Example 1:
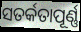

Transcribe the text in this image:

ସତର୍କତାପୂର୍ଣ୍ଣ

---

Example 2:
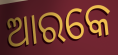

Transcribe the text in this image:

ଆରକେ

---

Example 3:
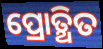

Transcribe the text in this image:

ପ୍ରୋତ୍ଥିତ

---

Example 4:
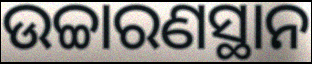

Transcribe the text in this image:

ଉଚ୍ଚାରଣସ୍ଥାନ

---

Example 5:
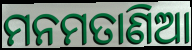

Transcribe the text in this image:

ମନମତାଣିଆ